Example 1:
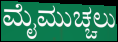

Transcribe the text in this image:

ಮೈಮುಚ್ಚಲು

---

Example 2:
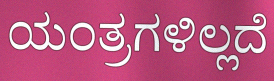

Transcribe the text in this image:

ಯಂತ್ರಗಳಿಲ್ಲದೆ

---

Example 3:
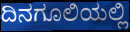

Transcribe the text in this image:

ದಿನಗೂಲಿಯಲ್ಲಿ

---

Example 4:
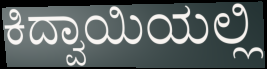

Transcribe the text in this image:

ಕಿದ್ವಾಯಿಯಲ್ಲಿ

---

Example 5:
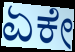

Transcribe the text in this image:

ಏಕೇ